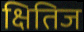
क्षितिज